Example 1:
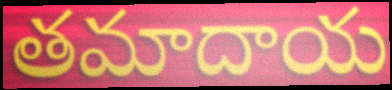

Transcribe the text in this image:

తమాదాయ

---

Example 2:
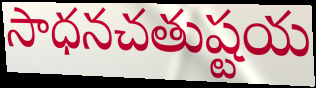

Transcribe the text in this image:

సాధనచతుష్టయ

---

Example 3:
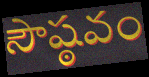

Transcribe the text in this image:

సౌష్ఠవం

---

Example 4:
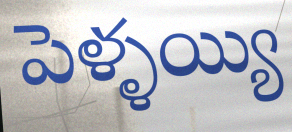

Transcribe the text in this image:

పెళ్ళయ్యి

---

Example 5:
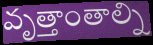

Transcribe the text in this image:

వృత్తాంతాల్ని